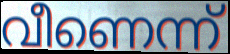
വീണെന്ന്